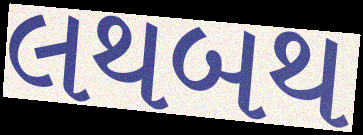
લથબથ